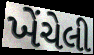
ખેંચેલી